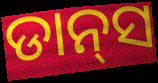
ଡାନ୍‍ସ